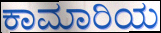
ಕಾಮಾರಿಯ